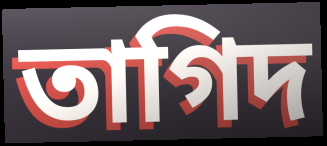
তাগিদ